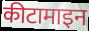
कीटामाइन